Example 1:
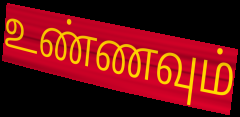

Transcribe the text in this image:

உண்ணவும்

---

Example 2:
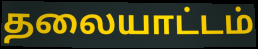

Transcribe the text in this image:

தலையாட்டம்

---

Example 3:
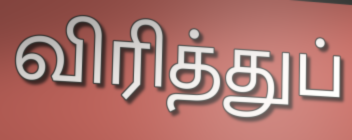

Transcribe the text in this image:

விரித்துப்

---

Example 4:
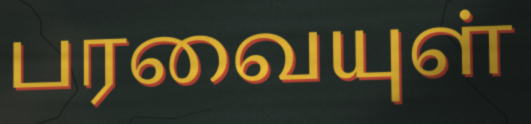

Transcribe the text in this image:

பரவையுள்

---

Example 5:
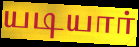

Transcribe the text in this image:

யடியார்